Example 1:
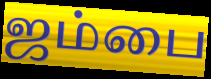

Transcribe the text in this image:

ஜம்பை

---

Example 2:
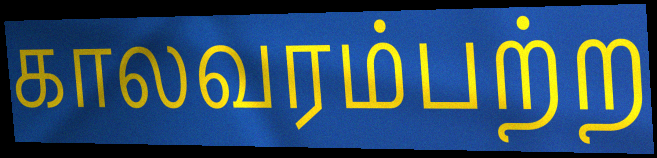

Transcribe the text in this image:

காலவரம்பற்ற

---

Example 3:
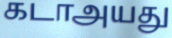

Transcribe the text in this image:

கடாஅயது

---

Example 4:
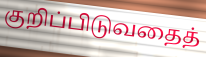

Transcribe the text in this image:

குறிப்பிடுவதைத்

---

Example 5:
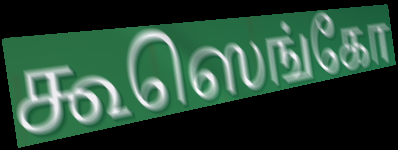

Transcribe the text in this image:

கூஸெங்கோ